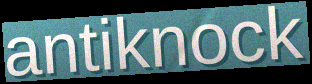
antiknock